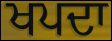
ਖਪਦਾ